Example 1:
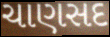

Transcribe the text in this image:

ચાણસદ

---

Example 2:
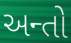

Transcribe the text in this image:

અન્તો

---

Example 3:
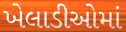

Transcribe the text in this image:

ખેલાડીઓમાં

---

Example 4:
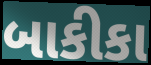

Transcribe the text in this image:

બાકીકા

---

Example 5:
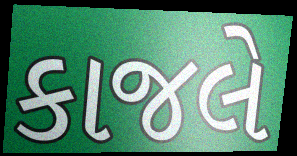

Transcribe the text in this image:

કાજલે